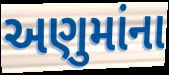
અણુમાંના